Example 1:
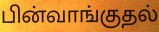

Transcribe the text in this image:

பின்வாங்குதல்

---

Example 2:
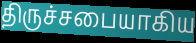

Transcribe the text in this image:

திருச்சபையாகிய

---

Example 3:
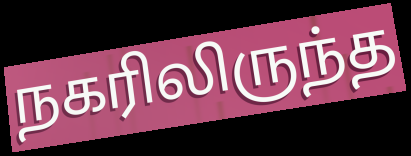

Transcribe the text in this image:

நகரிலிருந்த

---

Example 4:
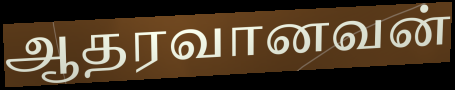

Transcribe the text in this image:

ஆதரவானவன்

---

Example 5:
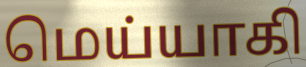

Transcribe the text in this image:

மெய்யாகி